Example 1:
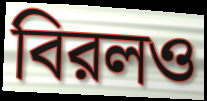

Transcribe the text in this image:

বিরলও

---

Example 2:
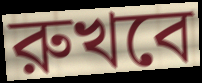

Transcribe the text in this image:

রুখবে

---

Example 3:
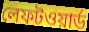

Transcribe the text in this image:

লেফটওয়ার্ড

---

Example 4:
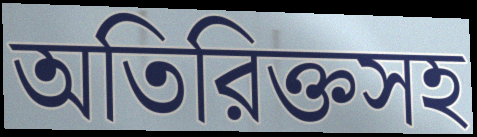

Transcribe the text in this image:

অতিরিক্তসহ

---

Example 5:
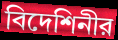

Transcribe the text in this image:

বিদেশিনীর